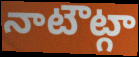
నాటౌట్గా